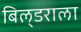
बिल्डराला